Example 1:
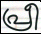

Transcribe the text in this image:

പ്രീ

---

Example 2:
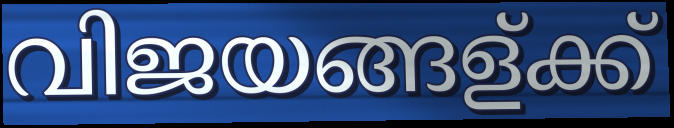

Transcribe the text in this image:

വിജയങ്ങള്ക്ക്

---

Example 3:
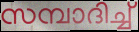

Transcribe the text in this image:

സമ്പാദിച്ച്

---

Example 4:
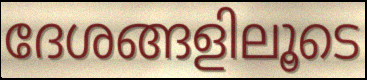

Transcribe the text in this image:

ദേശങ്ങളിലൂടെ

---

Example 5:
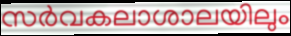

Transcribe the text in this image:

സർവകലാശാലയിലും